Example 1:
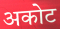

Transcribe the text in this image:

अकोट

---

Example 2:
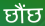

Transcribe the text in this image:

छौंछ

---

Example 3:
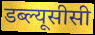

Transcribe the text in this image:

डब्ल्यूसीसी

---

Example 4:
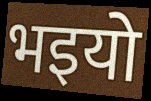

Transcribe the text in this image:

भइयो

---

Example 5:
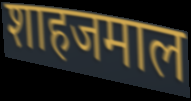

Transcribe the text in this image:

शाहजमाल